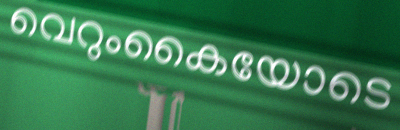
വെറുംകൈയോടെ